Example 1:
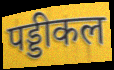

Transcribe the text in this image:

पड्डीकल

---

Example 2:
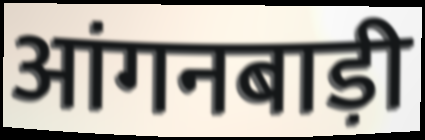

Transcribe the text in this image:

आंगनबाड़ी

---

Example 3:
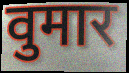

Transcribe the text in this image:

वुमार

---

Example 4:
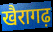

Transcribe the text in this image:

खैरागढ़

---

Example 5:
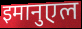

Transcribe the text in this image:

इमानुएल